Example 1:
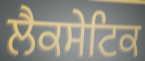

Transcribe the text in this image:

ਲੈਕਸੇਟਿਕ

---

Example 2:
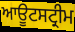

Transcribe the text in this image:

ਆਊਟਸਟ੍ਰੀਮ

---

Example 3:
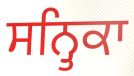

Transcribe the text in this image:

ਸਨ੍ਤਿਕਾ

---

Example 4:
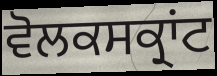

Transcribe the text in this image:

ਵੋਲਕਸਕ੍ਰਾਂਟ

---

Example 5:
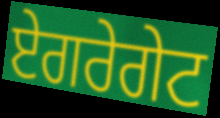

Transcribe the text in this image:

ਏਗਰੇਗੇਟ